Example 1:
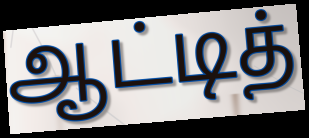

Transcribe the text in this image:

ஆட்டித்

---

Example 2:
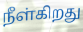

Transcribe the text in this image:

நீள்கிறது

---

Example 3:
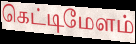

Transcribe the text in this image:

கெட்டிமேளம்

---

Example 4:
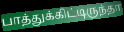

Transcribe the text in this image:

பாத்துக்கிட்டிருந்தா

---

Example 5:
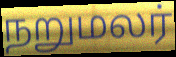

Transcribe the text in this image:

நறுமலர்